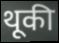
थूकी